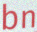
bn